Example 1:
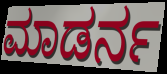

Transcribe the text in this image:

ಮಾಡರ್ನ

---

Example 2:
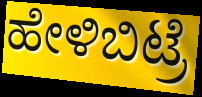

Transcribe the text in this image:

ಹೇಳಿಬಿಟ್ರೆ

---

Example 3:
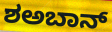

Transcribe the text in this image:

ಶಅಬಾನ್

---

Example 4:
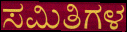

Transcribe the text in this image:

ಸಮಿತಿಗಳ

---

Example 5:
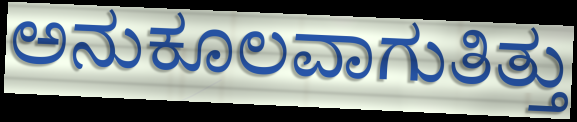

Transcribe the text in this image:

ಅನುಕೂಲವಾಗುತಿತ್ತು